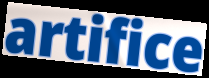
artifice